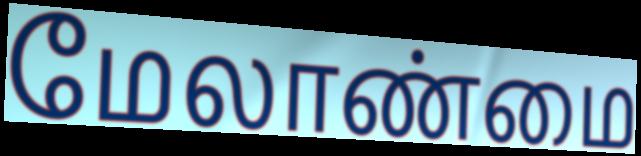
மேலாண்மை